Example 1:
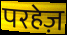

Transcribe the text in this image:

परहेज़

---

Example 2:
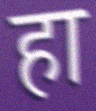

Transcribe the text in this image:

हा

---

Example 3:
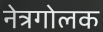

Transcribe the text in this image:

नेत्रगोलक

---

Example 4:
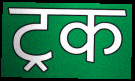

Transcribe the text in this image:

ट्रक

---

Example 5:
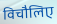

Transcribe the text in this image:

विचौलिए